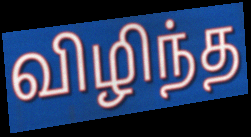
விழிந்த